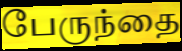
பேருந்தை